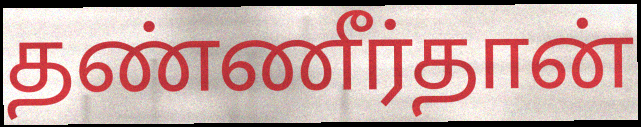
தண்ணீர்தான்